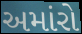
અમાંરો